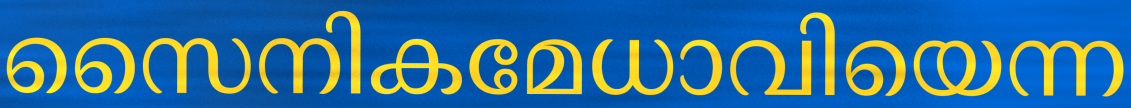
സൈനികമേധാവിയെന്ന